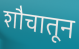
शौचातून